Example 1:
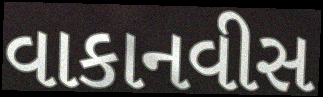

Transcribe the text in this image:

વાકાનવીસ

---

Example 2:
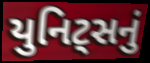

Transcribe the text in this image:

યુનિટ્સનું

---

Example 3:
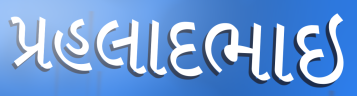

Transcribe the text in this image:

પ્રહલાદભાઇ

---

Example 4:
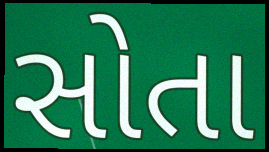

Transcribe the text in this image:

સોતા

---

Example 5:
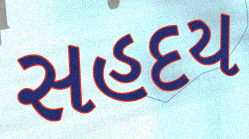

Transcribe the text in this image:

સહદય